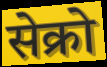
सेक्रो